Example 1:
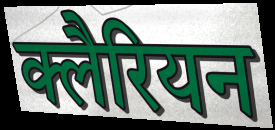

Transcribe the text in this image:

क्लैरियन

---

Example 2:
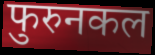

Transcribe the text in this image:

फुरुनकल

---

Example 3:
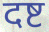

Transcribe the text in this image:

दष्ट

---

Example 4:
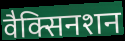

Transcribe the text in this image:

वैक्सिनशन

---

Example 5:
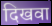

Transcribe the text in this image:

दिखवा